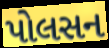
પોલસન